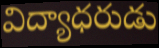
విద్యాధరుడు